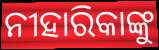
ନୀହାରିକାଙ୍କୁ